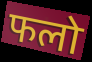
फलो